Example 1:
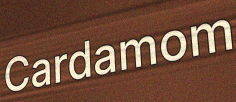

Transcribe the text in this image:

Cardamom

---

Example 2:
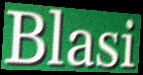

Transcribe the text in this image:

Blasi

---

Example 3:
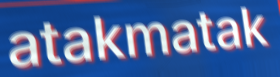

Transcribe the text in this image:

atakmatak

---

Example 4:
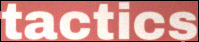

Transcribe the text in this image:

tactics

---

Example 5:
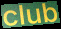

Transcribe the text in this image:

club